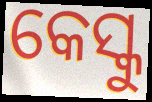
କେସ୍କୁ